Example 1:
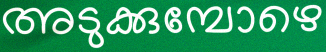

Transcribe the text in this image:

അടുക്കുമ്പോഴെ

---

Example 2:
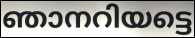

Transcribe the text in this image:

ഞാനറിയട്ടെ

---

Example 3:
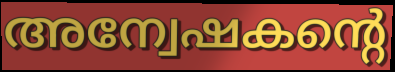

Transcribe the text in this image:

അന്വേഷകന്റെ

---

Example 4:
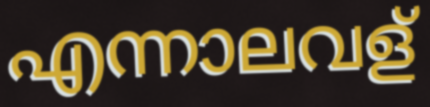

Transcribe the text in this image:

എന്നാലവള്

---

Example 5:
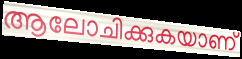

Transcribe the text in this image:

ആലോചിക്കുകയാണ്